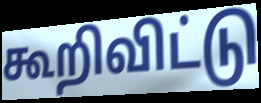
கூறிவிட்டு